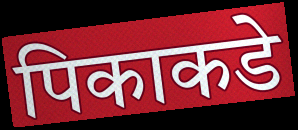
पिकाकडे